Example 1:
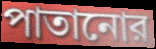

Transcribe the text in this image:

পাতানোর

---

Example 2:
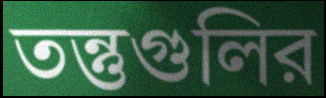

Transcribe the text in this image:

তন্তুগুলির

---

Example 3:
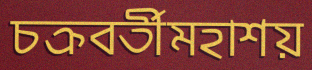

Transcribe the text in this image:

চক্রবর্তীমহাশয়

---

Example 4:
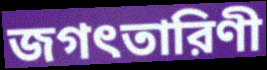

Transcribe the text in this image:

জগৎতারিণী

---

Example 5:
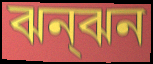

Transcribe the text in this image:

ঝন্ঝন